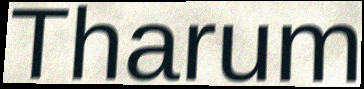
Tharum